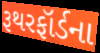
રૂથરફૉર્ડના